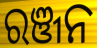
ରଞ୍ଜନ